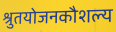
श्रुतयोजनकौशल्य